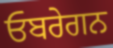
ਓਬਰੇਗਨ